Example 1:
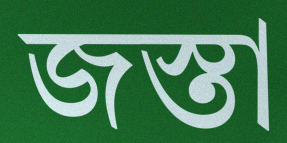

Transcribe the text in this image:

জস্তা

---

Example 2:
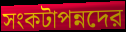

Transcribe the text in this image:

সংকটাপন্নদের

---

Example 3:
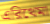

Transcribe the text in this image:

এরিথেমা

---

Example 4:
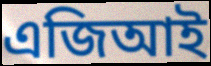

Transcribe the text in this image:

এজিআই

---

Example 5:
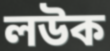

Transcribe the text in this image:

লউক